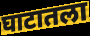
घाटातला